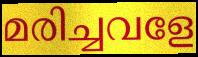
മരിച്ചവളേ